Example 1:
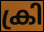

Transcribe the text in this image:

ക്രി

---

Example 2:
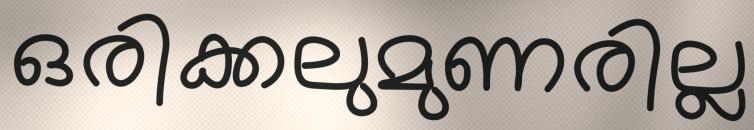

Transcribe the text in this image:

ഒരിക്കലുമുണരില്ല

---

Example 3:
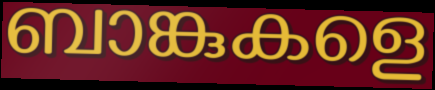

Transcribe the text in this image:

ബാങ്കുകളെ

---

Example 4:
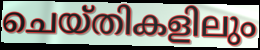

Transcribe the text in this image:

ചെയ്തികളിലും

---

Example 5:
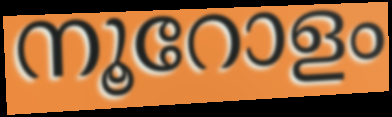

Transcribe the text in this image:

നൂറോളം